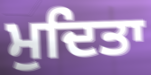
ਮੁਦਿਤਾ